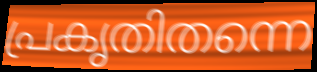
പ്രകൃതിതന്നെ